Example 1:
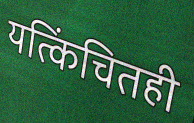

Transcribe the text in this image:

यत्किंचितही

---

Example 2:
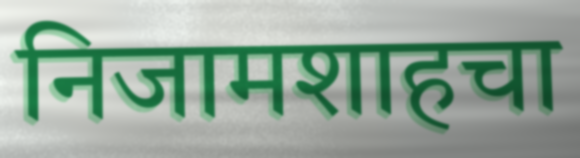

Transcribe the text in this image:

निजामशाहचा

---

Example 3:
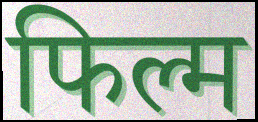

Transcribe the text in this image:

फिल्म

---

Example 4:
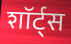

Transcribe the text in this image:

शॉर्ट्स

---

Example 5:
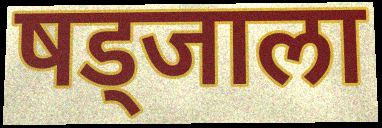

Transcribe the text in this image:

षड्जाला